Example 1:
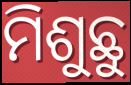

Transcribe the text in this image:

ମିଶୁଛୁ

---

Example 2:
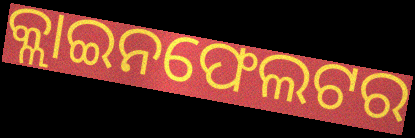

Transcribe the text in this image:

କ୍ଲାଇନଫେଲଟର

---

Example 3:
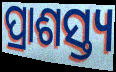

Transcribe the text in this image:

ପ୍ରାଶସ୍ତ୍ୟ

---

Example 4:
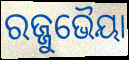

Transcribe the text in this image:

ରଜ୍ଜୁଭୈୟା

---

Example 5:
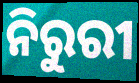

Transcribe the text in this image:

ନିରୁରୀ